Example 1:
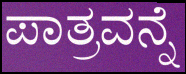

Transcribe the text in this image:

ಪಾತ್ರವನ್ನೆ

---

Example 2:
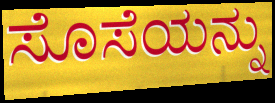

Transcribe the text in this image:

ಸೊಸೆಯನ್ನು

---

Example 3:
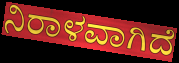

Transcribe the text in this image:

ನಿರಾಳವಾಗಿದೆ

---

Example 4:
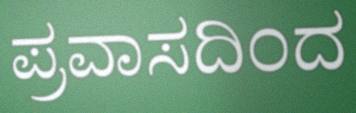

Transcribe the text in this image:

ಪ್ರವಾಸದಿಂದ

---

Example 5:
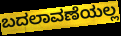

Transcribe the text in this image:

ಬದಲಾವಣೆಯಲ್ಲ